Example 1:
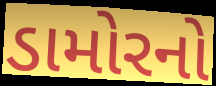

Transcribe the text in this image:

ડામોરનો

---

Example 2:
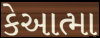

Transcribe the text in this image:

કેઆત્મા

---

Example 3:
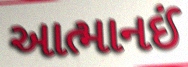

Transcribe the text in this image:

આત્માનઈં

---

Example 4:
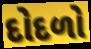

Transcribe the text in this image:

દોદળો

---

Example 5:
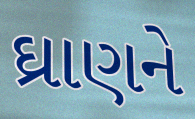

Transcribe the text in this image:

ઘ્રાણને